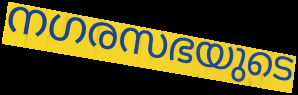
നഗരസഭയുടെ